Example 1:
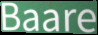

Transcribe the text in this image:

Baare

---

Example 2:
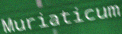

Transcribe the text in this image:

Muriaticum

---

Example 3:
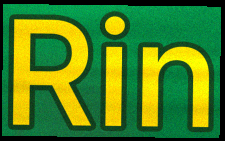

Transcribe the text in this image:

Rin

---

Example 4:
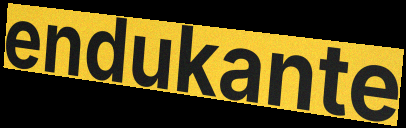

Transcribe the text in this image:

endukante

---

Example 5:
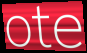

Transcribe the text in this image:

ote